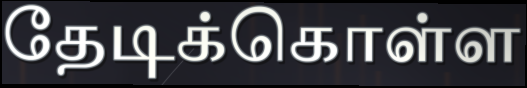
தேடிக்கொள்ள